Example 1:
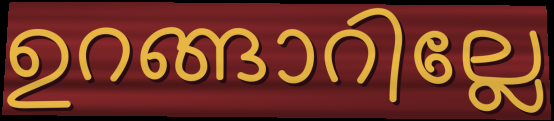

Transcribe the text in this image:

ഉറങ്ങാറില്ലേ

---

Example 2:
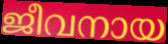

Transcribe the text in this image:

ജീവനായ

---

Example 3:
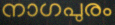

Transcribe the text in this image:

നാഗപുരം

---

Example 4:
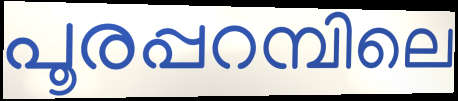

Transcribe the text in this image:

പൂരപ്പറമ്പിലെ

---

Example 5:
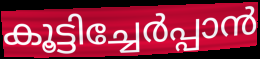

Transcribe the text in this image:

കൂട്ടിച്ചേർപ്പാൻ